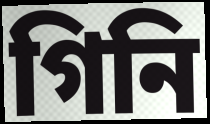
গিনি